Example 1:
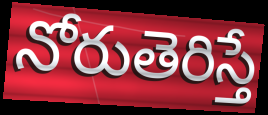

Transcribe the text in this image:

నోరుతెరిస్తే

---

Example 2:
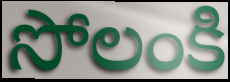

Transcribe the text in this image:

సోలంకి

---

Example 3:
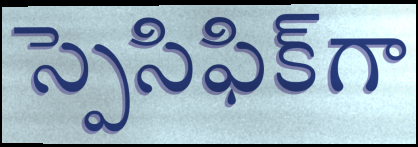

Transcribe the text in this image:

స్పెసిఫిక్‌గా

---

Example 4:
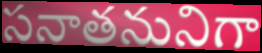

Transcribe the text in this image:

సనాతనునిగా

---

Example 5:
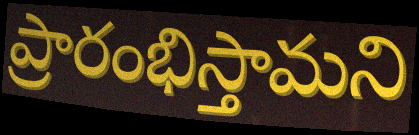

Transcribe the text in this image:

ప్రారంభిస్తామని